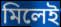
মিলেই